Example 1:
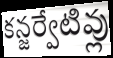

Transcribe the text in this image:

కన్జర్వేటివ్లు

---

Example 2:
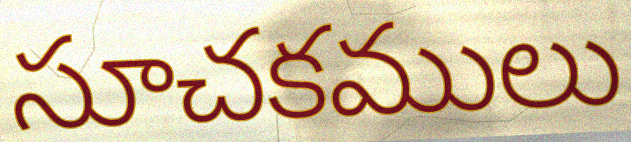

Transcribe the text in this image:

సూచకములు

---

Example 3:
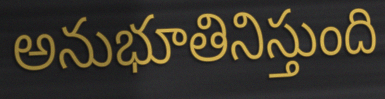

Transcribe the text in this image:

అనుభూతినిస్తుంది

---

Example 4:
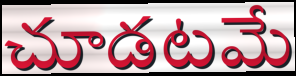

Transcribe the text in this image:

చూడటమే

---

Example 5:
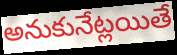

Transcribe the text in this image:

అనుకునేట్లయితే